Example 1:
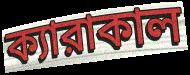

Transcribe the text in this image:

ক্যারাকাল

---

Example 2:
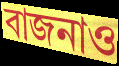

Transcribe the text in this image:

বাজনাও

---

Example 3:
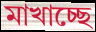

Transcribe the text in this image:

মাখাচ্ছে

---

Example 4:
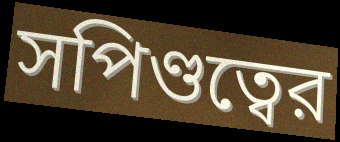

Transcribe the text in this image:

সপিণ্ডত্বের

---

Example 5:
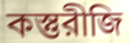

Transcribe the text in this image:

কস্তুরীজি